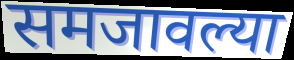
समजावल्या